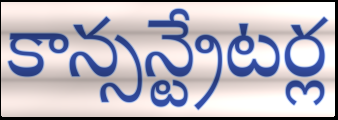
కాన్సన్ట్రేటర్ల